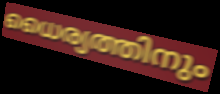
ധൈര്യത്തിനും